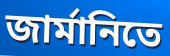
জার্মানিতে